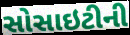
સોસાઇટીની